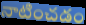
నాటించడం